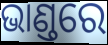
ଭାଣ୍ଡରେ